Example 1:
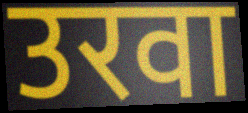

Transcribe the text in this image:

उरवा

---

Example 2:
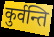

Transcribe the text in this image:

कुर्वन्ति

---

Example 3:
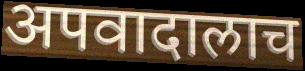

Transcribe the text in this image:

अपवादालाच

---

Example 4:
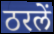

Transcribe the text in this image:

ठरलें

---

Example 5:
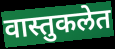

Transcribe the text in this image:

वास्तुकलेत